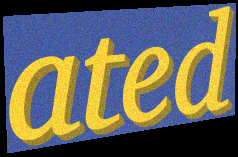
ated